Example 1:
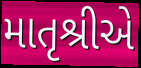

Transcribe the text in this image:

માતૃશ્રીએ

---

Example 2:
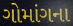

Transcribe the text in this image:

ગોમાંગના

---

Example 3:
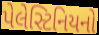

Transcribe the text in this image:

પેલેસ્ટિનિયનો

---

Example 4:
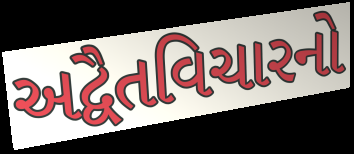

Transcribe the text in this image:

અદ્વૈતવિચારનો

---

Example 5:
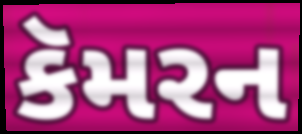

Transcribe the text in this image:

કૅમરન